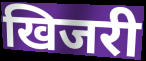
खिजरी